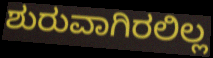
ಶುರುವಾಗಿರಲಿಲ್ಲ